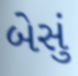
બેસું